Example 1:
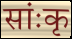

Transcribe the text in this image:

सांःकृ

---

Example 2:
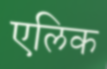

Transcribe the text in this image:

एलिक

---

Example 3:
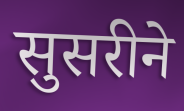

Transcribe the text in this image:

सुसरीने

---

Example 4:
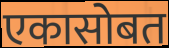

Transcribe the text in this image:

एकासोबत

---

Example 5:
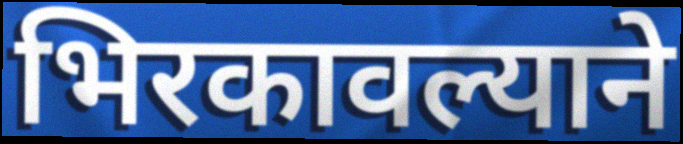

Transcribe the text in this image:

भिरकावल्याने